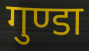
गुण्डा